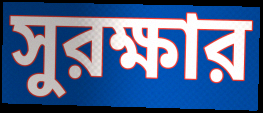
সুরক্ষার